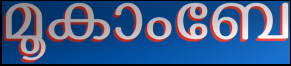
മൂകാംബേ